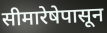
सीमारेषेपासून